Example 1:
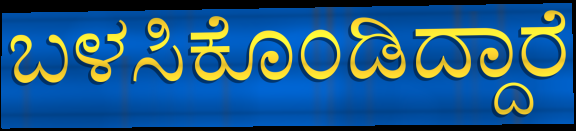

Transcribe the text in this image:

ಬಳಸಿಕೊಂಡಿದ್ದಾರೆ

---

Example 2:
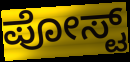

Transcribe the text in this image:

ಪೋಸ್ಟ್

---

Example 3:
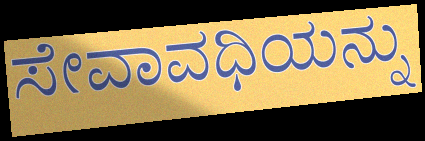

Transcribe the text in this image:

ಸೇವಾವಧಿಯನ್ನು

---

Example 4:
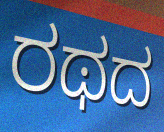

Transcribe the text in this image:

ರಥದ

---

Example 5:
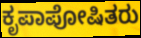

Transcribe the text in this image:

ಕೃಪಾಪೋಷಿತರು